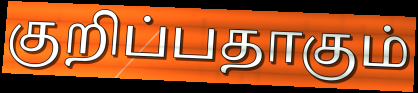
குறிப்பதாகும்